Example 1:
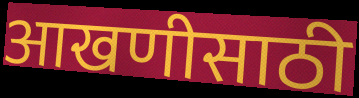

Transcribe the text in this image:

आखणीसाठी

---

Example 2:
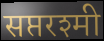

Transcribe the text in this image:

सप्तरश्मी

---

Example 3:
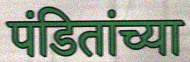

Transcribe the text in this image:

पंडितांच्या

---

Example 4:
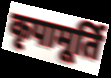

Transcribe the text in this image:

कृपामूर्ति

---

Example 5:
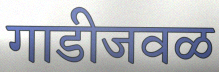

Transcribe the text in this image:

गाडीजवळ